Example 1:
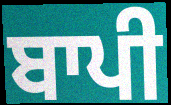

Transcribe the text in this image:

ਬਾਪੀ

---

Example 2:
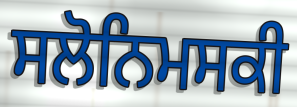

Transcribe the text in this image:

ਸਲੋਨਿਮਸਕੀ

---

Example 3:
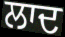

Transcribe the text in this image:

ਲਾਦ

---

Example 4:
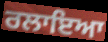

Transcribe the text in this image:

ਰਲਾਇਆ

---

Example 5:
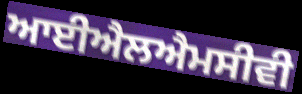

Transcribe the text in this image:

ਆਈਐਲਐਮਸੀਵੀ